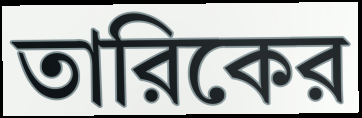
তারিকের